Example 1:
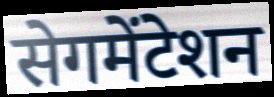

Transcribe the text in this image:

सेगमेंटेशन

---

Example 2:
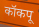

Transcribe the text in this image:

कॉकपू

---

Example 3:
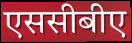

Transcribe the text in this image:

एससीबीए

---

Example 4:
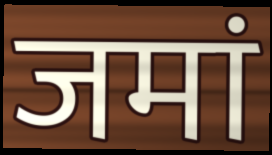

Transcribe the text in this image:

जमां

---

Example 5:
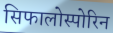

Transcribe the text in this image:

सिफालोस्पोरिन